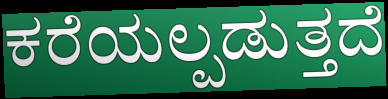
ಕರೆಯಲ್ಪಡುತ್ತದೆ